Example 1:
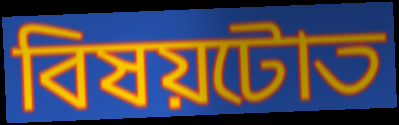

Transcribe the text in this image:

বিষয়টোত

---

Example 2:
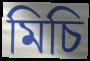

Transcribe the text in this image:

মিচি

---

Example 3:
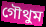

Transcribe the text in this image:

গৌথুম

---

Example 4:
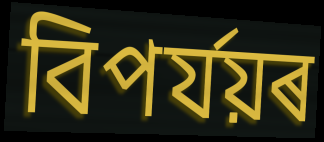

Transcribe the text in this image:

বিপৰ্যয়ৰ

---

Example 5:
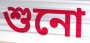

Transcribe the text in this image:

শুনো